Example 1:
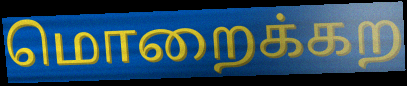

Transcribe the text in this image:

மொறைக்கற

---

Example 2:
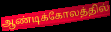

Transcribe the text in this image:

ஆண்டிக்கோலத்தில்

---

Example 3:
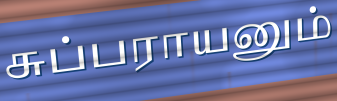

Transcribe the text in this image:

சுப்பராயனும்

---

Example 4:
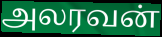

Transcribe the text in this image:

அலரவன்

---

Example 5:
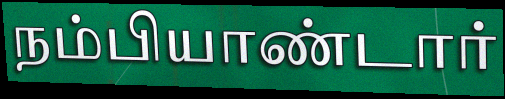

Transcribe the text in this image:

நம்பியாண்டார்